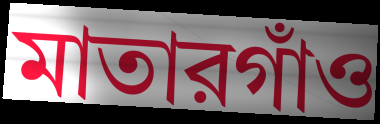
মাতারগাঁও